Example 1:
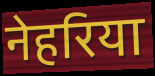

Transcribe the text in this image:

नेहरिया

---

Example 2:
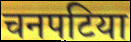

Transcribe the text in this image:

चनपटिया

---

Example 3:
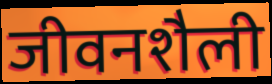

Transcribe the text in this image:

जीवनशैली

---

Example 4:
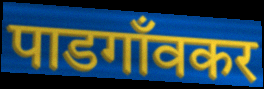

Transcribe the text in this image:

पाडगाँवकर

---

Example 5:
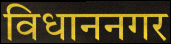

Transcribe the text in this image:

विधाननगर